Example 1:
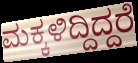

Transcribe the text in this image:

ಮಕ್ಕಳಿದ್ದಿದ್ದರೆ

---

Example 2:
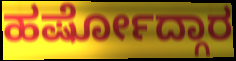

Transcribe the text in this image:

ಹರ್ಷೋದ್ಗಾರ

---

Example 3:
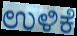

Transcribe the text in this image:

ಉಳಿಕೆ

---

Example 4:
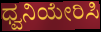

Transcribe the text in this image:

ಧ್ವನಿಯೇರಿಸಿ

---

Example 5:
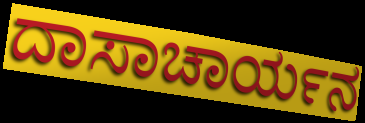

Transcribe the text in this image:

ದಾಸಾಚಾರ್ಯನ